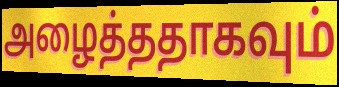
அழைத்ததாகவும்